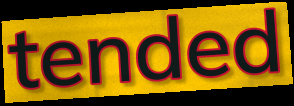
tended